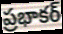
ప్రభాకర్